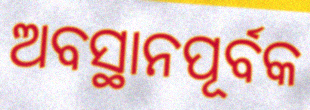
ଅବସ୍ଥାନପୂର୍ବକ